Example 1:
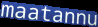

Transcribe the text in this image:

maatannu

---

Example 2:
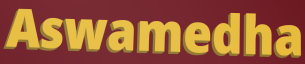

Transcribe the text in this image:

Aswamedha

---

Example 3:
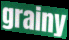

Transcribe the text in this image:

grainy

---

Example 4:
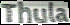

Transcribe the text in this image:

Thula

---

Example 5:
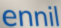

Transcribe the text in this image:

ennil